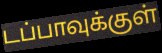
டப்பாவுக்குள்